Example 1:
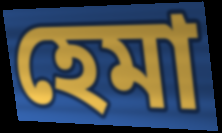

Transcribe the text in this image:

হেমা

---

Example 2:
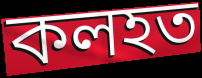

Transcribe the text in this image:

কলহত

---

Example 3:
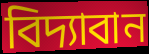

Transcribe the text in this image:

বিদ্যাবান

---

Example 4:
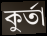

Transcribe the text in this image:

কুৰ্তা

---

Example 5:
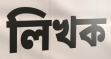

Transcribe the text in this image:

লিখক